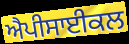
ਐਪੀਸਾਈਕਲ